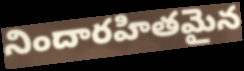
నిందారహితమైన